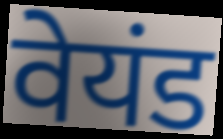
वेयंड